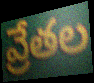
వ్రేతల